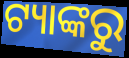
ଟ୍ୟାଙ୍କରୁ